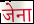
जेना